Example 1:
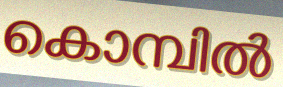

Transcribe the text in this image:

കൊമ്പിൽ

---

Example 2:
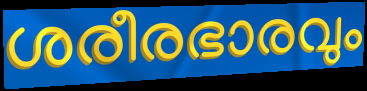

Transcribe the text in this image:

ശരീരഭാരവും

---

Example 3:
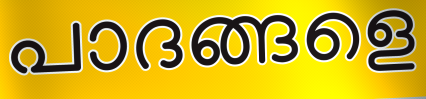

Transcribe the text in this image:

പാദങ്ങളെ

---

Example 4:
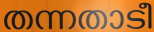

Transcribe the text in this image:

തന്നതാടീ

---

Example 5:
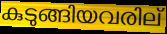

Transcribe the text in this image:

കുടുങ്ങിയവരില്